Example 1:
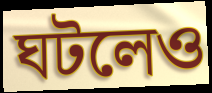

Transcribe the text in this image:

ঘটলেও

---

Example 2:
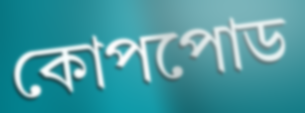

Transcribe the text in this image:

কোপপোড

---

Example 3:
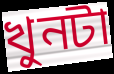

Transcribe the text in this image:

খুনটা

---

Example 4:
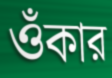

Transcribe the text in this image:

ওঁকার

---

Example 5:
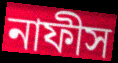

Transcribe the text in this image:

নাফীস